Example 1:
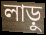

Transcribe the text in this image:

লাড়ু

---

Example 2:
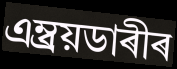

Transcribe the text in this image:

এম্ব্ৰয়ডাৰীৰ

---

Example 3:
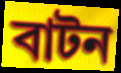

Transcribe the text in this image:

বাটন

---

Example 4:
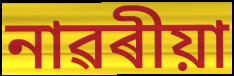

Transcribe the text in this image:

নাৱৰীয়া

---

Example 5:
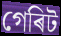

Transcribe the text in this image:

গেৰিট